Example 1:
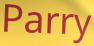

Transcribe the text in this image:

Parry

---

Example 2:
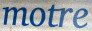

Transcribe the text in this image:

motre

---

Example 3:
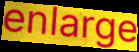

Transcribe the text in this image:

enlarge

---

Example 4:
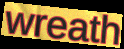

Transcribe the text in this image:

wreath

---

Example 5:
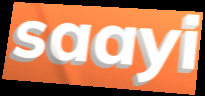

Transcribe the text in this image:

saayi